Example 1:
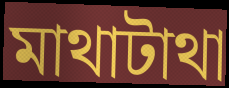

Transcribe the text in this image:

মাথাটাথা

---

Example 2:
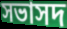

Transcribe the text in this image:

সভাসদ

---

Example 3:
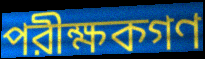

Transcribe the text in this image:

পরীক্ষকগণ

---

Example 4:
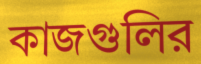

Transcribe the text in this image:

কাজগুলির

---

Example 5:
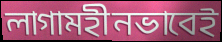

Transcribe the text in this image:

লাগামহীনভাবেই